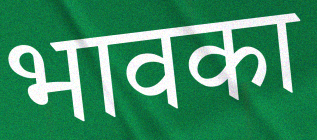
भावका